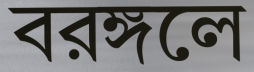
বরঙ্গলে